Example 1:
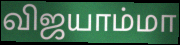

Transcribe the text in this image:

விஜயாம்மா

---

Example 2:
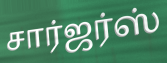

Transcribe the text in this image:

சார்ஜர்ஸ்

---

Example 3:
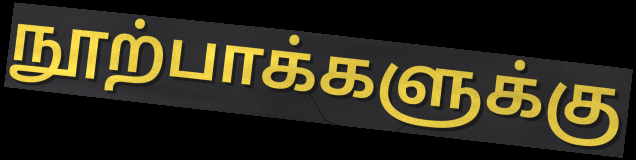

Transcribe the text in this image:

நூற்பாக்களுக்கு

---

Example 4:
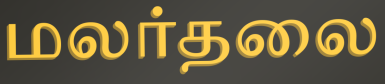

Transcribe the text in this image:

மலர்தலை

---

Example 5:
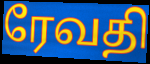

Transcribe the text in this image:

ரேவதி